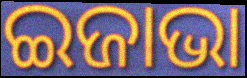
ଇଜାଭା